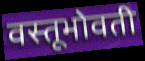
वस्तूभोवती